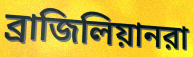
ব্রাজিলিয়ানরা